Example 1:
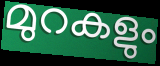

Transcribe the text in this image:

മുറകളും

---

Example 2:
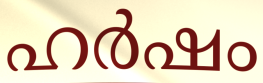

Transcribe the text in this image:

ഹർഷം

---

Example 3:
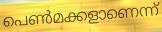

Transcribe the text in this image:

പെൺമക്കളാണെന്ന്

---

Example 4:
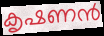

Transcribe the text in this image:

കൃഷണൻ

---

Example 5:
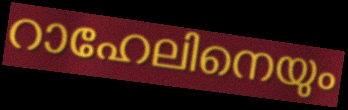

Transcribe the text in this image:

റാഹേലിനെയും